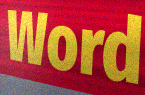
Word